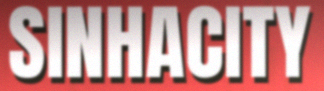
SINHACITY